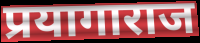
प्रयागाराज